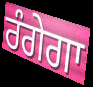
ਰੰਗੇਗਾ